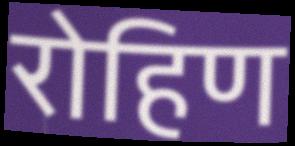
रोहिण